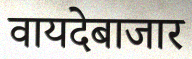
वायदेबाजार